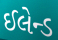
ઈલેન્ડ